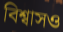
বিশ্বাসও